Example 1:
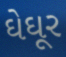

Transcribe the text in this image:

ઘેઘૂર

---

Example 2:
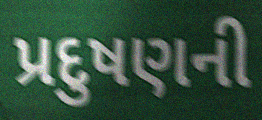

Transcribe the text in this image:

પ્રદુષણની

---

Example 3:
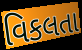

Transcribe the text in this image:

વિકલતા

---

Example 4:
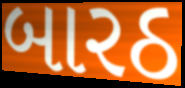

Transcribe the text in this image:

બારઠ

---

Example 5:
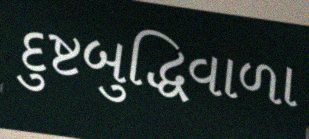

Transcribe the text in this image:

દુષ્ટબુદ્ધિવાળા